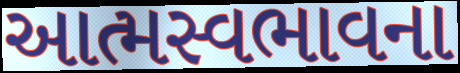
આત્મસ્વભાવના